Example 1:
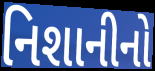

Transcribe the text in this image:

નિશાનીનો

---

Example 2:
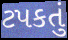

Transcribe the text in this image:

ટપકતું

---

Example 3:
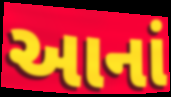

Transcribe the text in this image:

આનાં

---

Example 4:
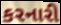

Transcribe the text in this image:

કરનારી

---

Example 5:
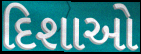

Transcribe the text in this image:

દિશાઓ